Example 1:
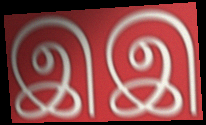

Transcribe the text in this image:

இஇ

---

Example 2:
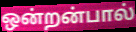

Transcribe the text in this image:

ஒன்றன்பால்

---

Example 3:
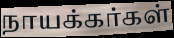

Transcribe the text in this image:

நாயக்கர்கள்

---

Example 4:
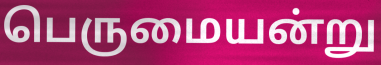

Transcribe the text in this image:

பெருமையன்று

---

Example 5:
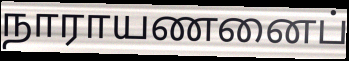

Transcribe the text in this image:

நாராயணனைப்